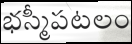
భస్మీపటలం